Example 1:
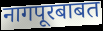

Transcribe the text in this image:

नागपूरबाबत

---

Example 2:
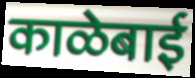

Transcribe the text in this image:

काळेबाई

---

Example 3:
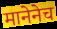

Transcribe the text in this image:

मानेनेच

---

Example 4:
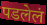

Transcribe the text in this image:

पडलेलं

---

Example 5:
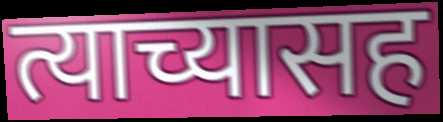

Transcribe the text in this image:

त्याच्यासह